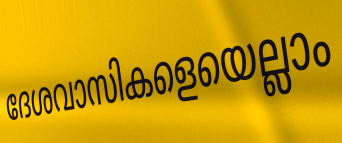
ദേശവാസികളെയെല്ലാം